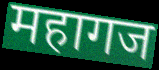
महागज